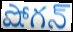
షోగన్